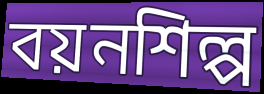
বয়নশিল্প